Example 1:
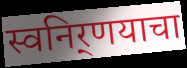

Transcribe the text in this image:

स्वनिर्णयाचा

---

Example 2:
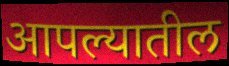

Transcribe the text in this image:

आपल्यातील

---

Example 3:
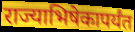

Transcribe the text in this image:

राज्याभिषेकापर्यंत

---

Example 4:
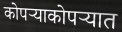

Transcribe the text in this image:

कोपऱ्याकोपऱ्यात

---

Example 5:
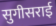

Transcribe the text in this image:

सुगीसराई